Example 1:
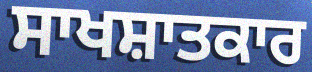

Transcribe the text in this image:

ਸਾਖਸ਼ਾਤਕਾਰ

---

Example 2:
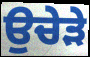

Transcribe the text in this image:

ਉਚੇੜੇ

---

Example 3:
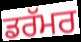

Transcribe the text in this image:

ਡਰੱਮਰ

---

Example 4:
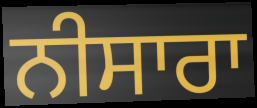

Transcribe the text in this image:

ਨੀਸਾਰਾ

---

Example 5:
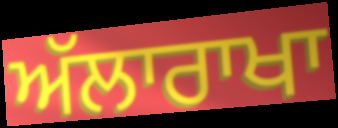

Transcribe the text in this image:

ਅੱਲਾਰਾਖਾ